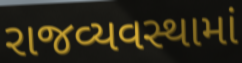
રાજવ્યવસ્થામાં